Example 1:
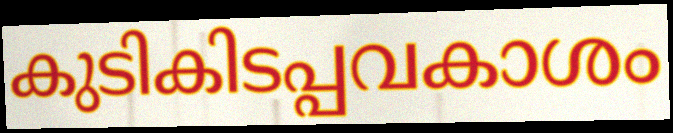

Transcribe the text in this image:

കുടികിടപ്പവകാശം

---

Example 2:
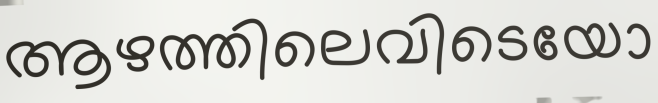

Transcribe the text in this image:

ആഴത്തിലെവിടെയോ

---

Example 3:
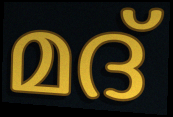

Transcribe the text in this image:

മദ്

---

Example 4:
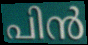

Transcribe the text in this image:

പിൻ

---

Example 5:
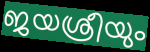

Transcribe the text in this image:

ജയശ്രീയും